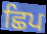
ਛਿਪ